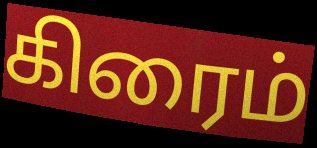
கிரைம்